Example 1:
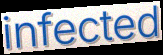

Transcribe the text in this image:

infected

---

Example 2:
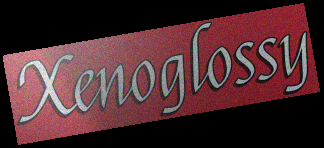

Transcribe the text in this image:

Xenoglossy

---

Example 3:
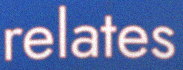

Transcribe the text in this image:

relates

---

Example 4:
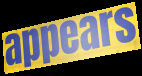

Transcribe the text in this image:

appears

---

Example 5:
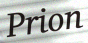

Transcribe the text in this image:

Prion